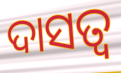
ଦାସତ୍ଵ